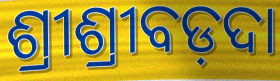
ଶ୍ରୀଶ୍ରୀବଡ଼ଦା